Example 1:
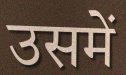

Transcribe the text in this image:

उसमें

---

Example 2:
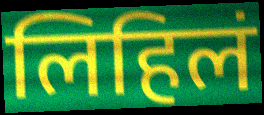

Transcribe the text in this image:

लिहिलं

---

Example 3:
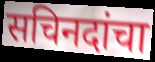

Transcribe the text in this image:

सचिनदांचा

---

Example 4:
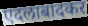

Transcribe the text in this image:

एदलाबादकर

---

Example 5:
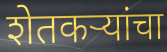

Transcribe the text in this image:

शेतकऱ्यांचा